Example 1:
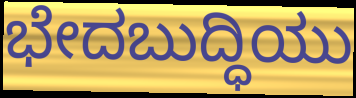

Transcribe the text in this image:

ಭೇದಬುದ್ಧಿಯು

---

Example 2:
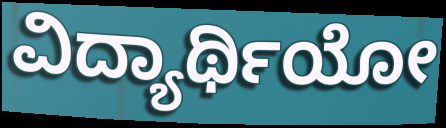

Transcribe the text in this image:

ವಿದ್ಯಾರ್ಥಿಯೋ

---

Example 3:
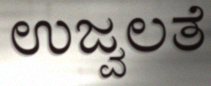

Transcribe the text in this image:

ಉಜ್ವಲತೆ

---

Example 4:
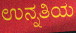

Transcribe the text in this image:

ಉನ್ನತಿಯ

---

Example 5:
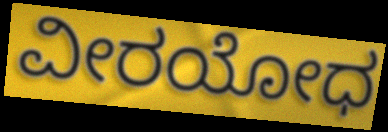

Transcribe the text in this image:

ವೀರಯೋಧ